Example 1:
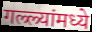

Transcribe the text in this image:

गल्ल्यांमध्ये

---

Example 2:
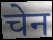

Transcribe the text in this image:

चेन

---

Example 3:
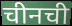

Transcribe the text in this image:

चीनची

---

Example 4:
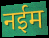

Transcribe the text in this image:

नईम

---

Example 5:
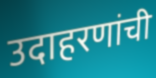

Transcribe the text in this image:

उदाहरणांची